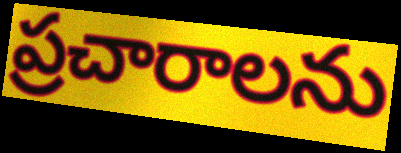
ప్రచారాలను